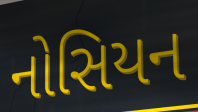
નોસિયન